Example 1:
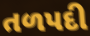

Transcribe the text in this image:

તળપદી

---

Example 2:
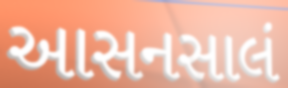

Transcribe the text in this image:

આસનસાલં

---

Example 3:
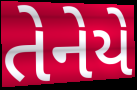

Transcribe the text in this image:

તેનેયે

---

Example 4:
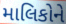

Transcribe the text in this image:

માલિકોને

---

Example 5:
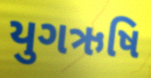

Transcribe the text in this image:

યુગઋષિ